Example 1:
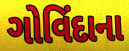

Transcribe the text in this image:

ગોવિંદાના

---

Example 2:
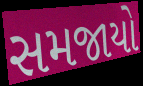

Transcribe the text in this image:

સમજાયો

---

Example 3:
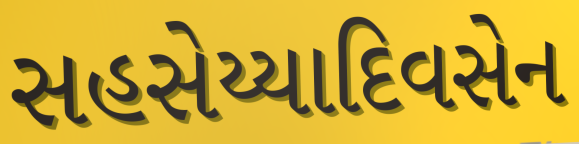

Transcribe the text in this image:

સહસેય્યાદિવસેન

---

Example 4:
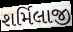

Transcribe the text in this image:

શર્મિલાજી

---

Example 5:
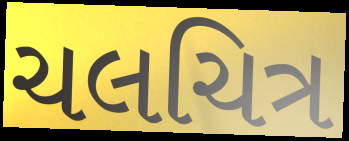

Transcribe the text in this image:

ચલચિત્ર